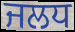
ਜਲਧ